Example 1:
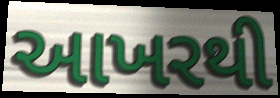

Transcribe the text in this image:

આખરથી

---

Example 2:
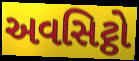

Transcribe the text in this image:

અવસિટ્ઠો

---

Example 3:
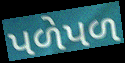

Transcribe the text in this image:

પળેપળ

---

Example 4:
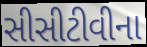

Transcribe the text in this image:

સીસીટીવીના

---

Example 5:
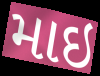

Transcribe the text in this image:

માઇ